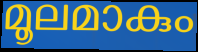
മൂലമാകും